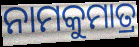
ନାମକୁମାତ୍ର